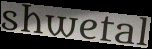
shwetal